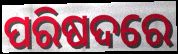
ପରିଷଦରେ